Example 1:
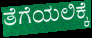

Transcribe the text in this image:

ತೆಗೆಯಲಿಕ್ಕೆ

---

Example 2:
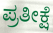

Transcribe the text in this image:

ಪ್ರತೀಕ್ಷೆ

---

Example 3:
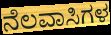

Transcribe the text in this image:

ನೆಲವಾಸಿಗಳ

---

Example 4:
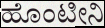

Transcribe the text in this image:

ಹೊಂಟೀನಿ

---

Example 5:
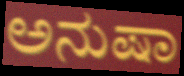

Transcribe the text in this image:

ಅನುಷಾ